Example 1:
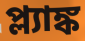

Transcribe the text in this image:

প্ল্যাঙ্ক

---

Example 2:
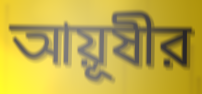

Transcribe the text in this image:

আয়ূষীর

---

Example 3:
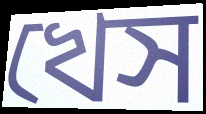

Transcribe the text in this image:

খেস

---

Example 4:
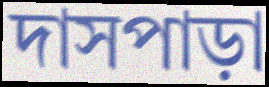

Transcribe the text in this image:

দাসপাড়া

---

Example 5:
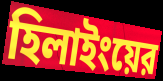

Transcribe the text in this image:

হিলাইংয়ের